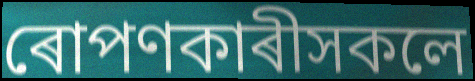
ৰোপণকাৰীসকলে